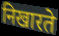
निखारते